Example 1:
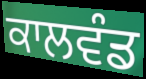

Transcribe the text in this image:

ਕਾਲਵੰਡ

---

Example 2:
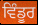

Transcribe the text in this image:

ਵਿੰਡੂਰ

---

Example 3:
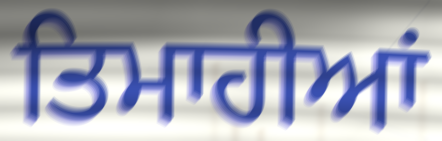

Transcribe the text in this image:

ਤਿਮਾਹੀਆਂ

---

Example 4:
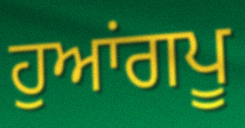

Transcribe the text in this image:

ਹੁਆਂਗਪੂ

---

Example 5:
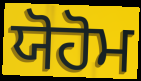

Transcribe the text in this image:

ਯੋਹੋਮ